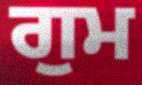
ਗੁਮ